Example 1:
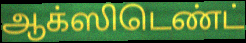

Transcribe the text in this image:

ஆக்ஸிடெண்ட்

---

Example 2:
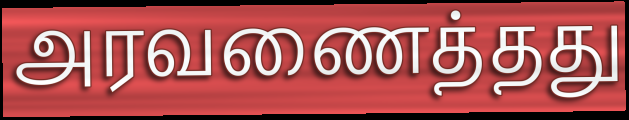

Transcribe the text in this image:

அரவணைத்தது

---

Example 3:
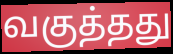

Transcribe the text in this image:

வகுத்தது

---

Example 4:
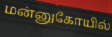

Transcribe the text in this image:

மன்னுகோயில்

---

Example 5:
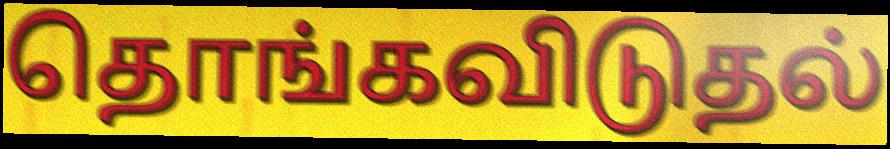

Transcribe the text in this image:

தொங்கவிடுதல்